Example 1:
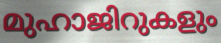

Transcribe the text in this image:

മുഹാജിറുകളും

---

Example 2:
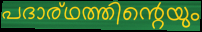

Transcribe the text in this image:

പദാര്ഥത്തിന്റെയും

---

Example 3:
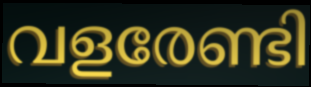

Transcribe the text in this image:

വളരേണ്ടി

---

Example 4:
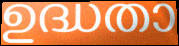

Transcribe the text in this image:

ഉദ്ധതാ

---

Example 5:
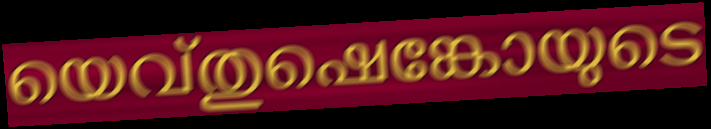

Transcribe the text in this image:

യെവ്തുഷെങ്കോയുടെ